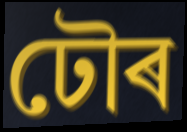
ঢৌৰ